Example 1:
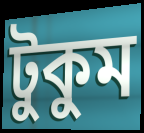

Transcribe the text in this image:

টুকুম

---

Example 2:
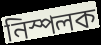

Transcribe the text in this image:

নিস্পলক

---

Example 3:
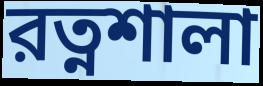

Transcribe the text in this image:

রত্নশালা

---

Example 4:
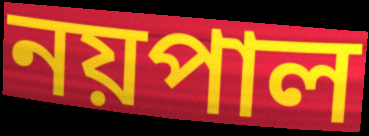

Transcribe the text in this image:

নয়পাল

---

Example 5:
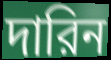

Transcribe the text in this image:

দারিন